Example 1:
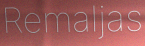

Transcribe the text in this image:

Remaljas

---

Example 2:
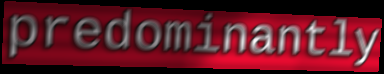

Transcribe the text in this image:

predominantly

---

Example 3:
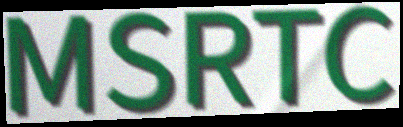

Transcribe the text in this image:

MSRTC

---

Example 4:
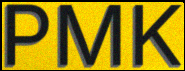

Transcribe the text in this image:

PMK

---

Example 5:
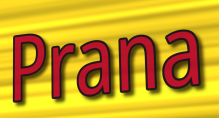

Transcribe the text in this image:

Prana